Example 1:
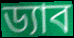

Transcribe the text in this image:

ড্যাব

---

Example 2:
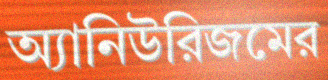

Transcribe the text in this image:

অ্যানিউরিজমের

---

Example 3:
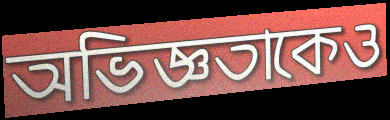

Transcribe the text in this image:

অভিজ্ঞতাকেও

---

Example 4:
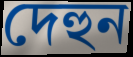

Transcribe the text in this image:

দেহুন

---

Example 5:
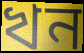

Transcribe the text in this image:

খন